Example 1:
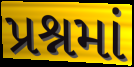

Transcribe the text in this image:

પ્રશ્નમાં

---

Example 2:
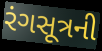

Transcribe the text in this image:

રંગસૂત્રની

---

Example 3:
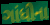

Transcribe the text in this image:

ગાંધીના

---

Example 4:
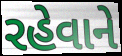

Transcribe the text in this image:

રહેવાને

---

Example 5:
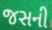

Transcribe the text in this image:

જસની